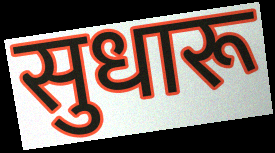
सुधारू